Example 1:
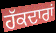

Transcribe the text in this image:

ਹੱਕਦਾਰਾਂ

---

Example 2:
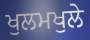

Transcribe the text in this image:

ਖੁਲਮਖੁਲੇ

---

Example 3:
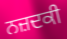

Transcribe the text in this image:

ਨਜ਼ਦਕੀ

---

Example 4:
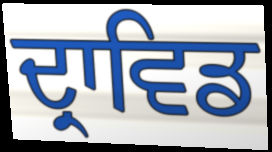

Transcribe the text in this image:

ਦ੍ਰਾਵਿਡ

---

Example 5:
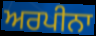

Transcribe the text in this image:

ਅਰਪੀਨਾ